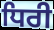
ਧਿਰੀ